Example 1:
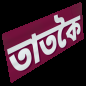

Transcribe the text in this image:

তাতকৈ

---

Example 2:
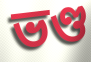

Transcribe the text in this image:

ভণ্ড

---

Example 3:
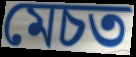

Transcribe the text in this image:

মেচত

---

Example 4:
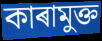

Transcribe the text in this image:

কাৰামুক্ত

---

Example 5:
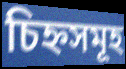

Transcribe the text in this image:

চিহ্নসমূহ